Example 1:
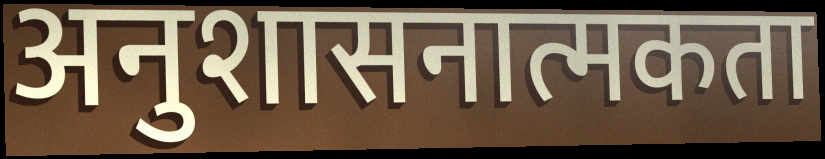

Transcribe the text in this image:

अनुशासनात्मकता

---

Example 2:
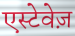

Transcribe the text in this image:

एस्टेवेज़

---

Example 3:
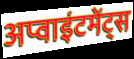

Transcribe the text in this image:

अप्वाइंटमेंट्स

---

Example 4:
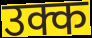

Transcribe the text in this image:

उक्क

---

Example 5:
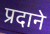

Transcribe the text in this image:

प्रदाने